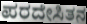
ಪರದೇಸಿತನ